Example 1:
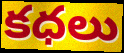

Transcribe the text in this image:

కధలు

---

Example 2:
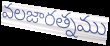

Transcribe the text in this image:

వలజారత్నము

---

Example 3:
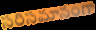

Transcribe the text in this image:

సరిసమానంగా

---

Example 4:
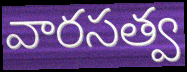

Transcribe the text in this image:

వారసత్వ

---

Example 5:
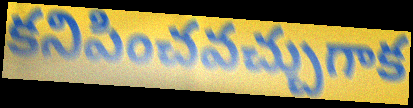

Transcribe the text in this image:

కనిపించవచ్చుగాక